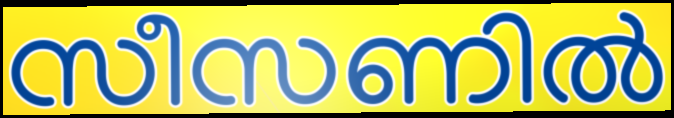
സീസണിൽ